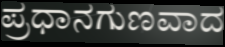
ಪ್ರಧಾನಗುಣವಾದ